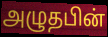
அழுதபின்